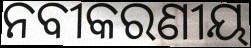
ନବୀକରଣୀୟ